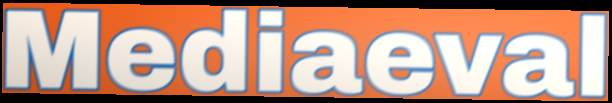
Mediaeval